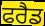
ਫਰੈਡ